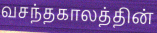
வசந்தகாலத்தின்